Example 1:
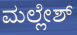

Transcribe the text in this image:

ಮಲ್ಲೇಶ್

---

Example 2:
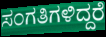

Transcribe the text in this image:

ಸಂಗತಿಗಳಿದ್ದರೆ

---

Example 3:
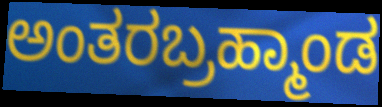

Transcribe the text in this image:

ಅಂತರಬ್ರಹ್ಮಾಂಡ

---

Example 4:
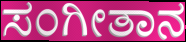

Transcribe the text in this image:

ಸಂಗೀತಾನ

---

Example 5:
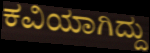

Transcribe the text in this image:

ಕವಿಯಾಗಿದ್ದು